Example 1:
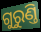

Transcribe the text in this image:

ଗୁରୁଣ୍ତି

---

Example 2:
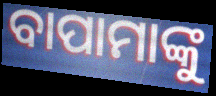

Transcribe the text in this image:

ବାପାମାଙ୍କୁ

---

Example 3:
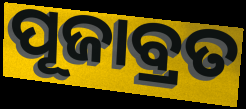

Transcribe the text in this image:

ପୂଜାବ୍ରତ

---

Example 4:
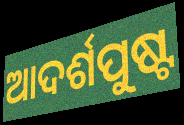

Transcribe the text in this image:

ଆଦର୍ଶପୁଷ୍ଟ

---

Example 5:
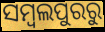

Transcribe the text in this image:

ସମ୍ବଲପୁରରୁ